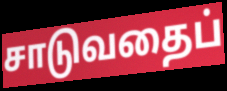
சாடுவதைப்